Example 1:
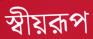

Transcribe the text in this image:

স্বীয়রূপ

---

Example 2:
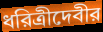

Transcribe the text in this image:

ধরিত্রীদেবীর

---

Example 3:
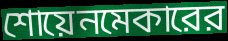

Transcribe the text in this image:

শোয়েনমেকারের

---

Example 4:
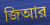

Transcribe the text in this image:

জিআর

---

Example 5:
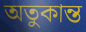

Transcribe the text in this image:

অতুকান্ত